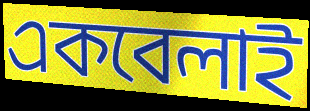
একবেলাই